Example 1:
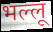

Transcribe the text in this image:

भल्लू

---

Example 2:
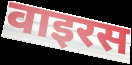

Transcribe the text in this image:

वाइरस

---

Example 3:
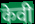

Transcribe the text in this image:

केवी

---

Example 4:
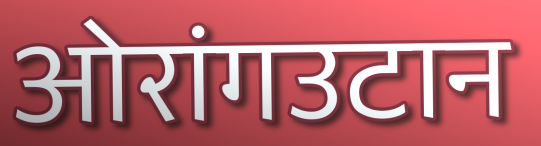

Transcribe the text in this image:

ओरांगउटान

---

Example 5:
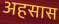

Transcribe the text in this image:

अहसास